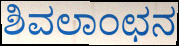
ಶಿವಲಾಂಛನ